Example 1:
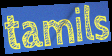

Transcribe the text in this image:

tamils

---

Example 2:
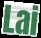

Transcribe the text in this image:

Lai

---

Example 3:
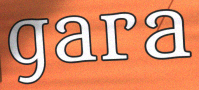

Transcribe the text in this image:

gara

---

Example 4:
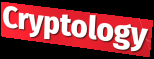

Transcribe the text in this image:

Cryptology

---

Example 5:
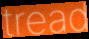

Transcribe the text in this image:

tread